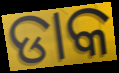
ଡାକ